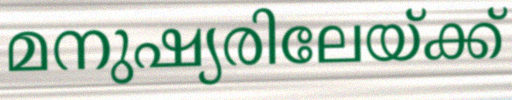
മനുഷ്യരിലേയ്ക്ക്